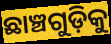
ଛାଞ୍ଚଗୁଡ଼ିକୁ